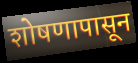
शोषणापासून